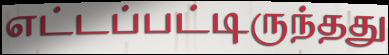
எட்டப்பட்டிருந்தது